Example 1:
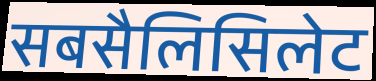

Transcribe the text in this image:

सबसैलिसिलेट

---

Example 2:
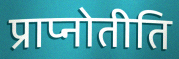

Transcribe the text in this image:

प्राप्नोतीति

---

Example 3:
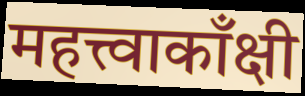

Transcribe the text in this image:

महत्त्वाकाँक्षी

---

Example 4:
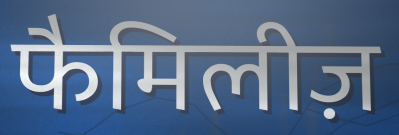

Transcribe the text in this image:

फैमिलीज़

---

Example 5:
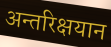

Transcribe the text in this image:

अन्तरिक्षयान